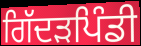
ਗਿੱਦੜਪਿੰਡੀ